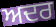
ਅਦਰ